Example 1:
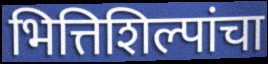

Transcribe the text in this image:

भित्तिशिल्पांचा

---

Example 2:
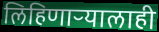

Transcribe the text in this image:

लिहिणाऱ्यालाही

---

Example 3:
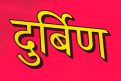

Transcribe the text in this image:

दुर्बिण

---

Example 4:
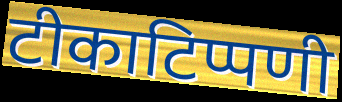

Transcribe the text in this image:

टीकाटिप्पणी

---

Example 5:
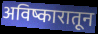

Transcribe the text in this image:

अविष्कारातून